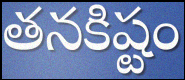
తనకిష్టం